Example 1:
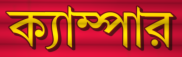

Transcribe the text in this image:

ক্যাম্পার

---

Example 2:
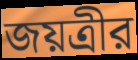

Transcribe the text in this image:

জয়ত্রীর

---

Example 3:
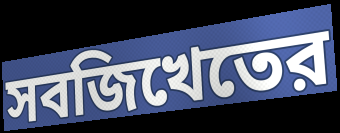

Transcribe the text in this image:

সবজিখেতের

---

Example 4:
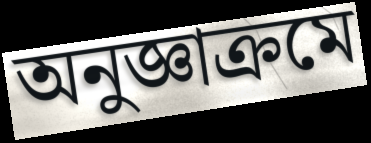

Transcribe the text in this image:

অনুজ্ঞাক্রমে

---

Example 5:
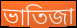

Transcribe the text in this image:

ভাতিজা